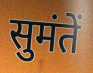
सुमंतें